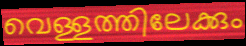
വെള്ളത്തിലേക്കും